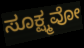
ಸೂಕ್ಷ್ಮವೋ